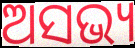
ଅସଭ୍ୟ